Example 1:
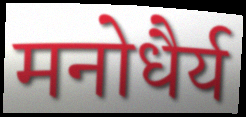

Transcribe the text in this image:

मनोधैर्य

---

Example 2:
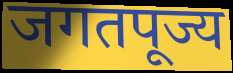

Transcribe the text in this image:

जगतपूज्य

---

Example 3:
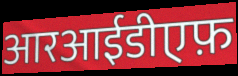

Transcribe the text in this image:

आरआईडीएफ़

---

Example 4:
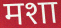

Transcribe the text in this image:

मशा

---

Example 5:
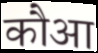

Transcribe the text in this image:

कौआ